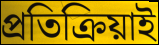
প্রতিক্রিয়াই